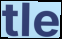
tle